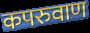
कपरुवाण